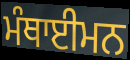
ਮੰਥਾਈਮਨ